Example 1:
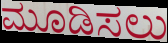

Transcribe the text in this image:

ಮೂಡಿಸಲು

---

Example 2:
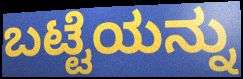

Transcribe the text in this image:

ಬಟ್ಟೆಯನ್ನು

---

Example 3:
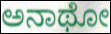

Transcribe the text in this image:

ಅನಾಥೋ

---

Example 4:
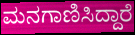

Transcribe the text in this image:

ಮನಗಾಣಿಸಿದ್ದಾರೆ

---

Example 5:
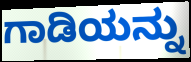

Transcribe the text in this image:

ಗಾಡಿಯನ್ನು